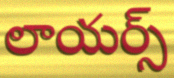
లాయర్స్